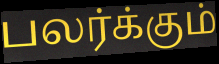
பலர்க்கும்